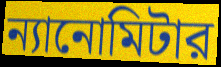
ন্যানোমিটার